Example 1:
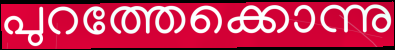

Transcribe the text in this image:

പുറത്തേക്കൊന്നു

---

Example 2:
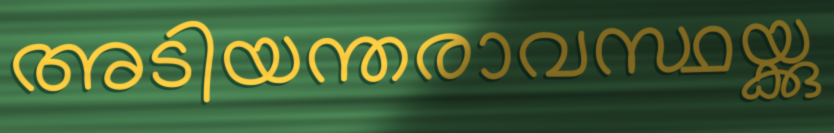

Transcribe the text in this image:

അടിയന്തരാവസ്ഥയ്ക്കു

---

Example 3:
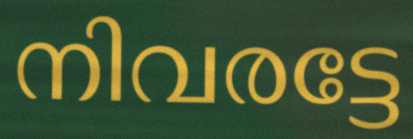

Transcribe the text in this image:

നിവരട്ടേ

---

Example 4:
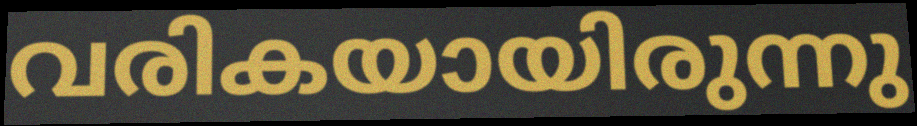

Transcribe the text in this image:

വരികയായിരുന്നു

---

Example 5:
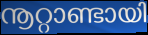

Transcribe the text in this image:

നൂറ്റാണ്ടായി